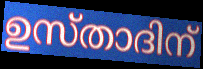
ഉസ്താദിന്